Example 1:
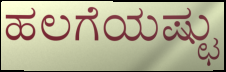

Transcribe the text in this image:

ಹಲಗೆಯಷ್ಟು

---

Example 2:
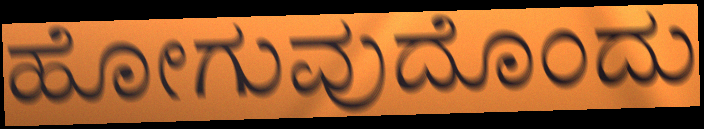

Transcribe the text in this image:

ಹೋಗುವುದೊಂದು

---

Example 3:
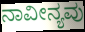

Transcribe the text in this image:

ನಾವೀನ್ಯವು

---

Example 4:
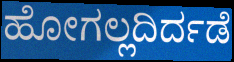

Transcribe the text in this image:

ಹೋಗಲ್ಲದಿರ್ದಡೆ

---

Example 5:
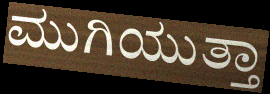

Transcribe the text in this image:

ಮುಗಿಯುತ್ತಾ